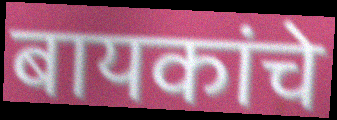
बायकांचे